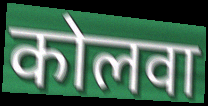
कोलवा